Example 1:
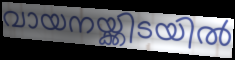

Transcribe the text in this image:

വായനയ്ക്കിടയിൽ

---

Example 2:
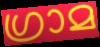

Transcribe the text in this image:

ഗ്രാമ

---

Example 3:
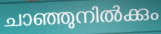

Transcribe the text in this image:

ചാഞ്ഞുനിൽക്കും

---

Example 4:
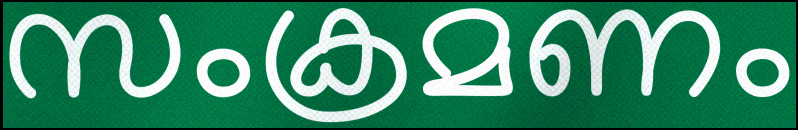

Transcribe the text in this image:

സംക്രമണം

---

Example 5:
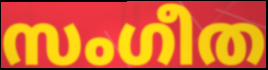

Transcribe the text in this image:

സംഗീത